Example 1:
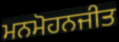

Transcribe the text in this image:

ਮਨਮੋਹਨਜੀਤ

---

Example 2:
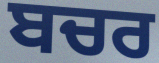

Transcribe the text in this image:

ਬਚਰ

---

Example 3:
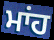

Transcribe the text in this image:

ਮਾਂਹ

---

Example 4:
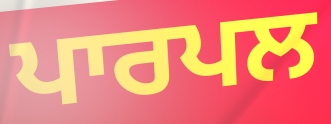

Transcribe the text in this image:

ਪਾਰਪਲ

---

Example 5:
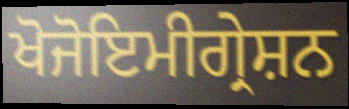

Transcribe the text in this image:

ਖੋਜੋਇਮੀਗ੍ਰੇਸ਼ਨ